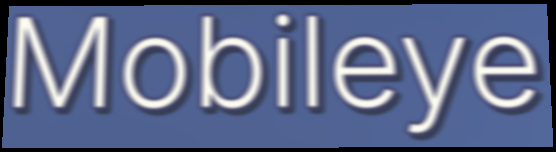
Mobileye